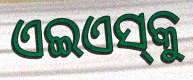
ଏଇଏସ୍‌କୁ